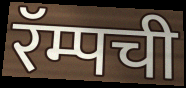
रॅम्पची